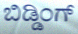
ಬಿಡ್ಡಿಂಗ್